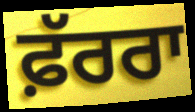
ਫ਼ੱਰਰਾ